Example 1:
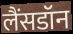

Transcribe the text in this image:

लैंसडॉन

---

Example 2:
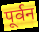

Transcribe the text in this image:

पूर्वन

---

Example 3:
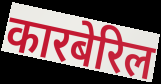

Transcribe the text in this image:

कारबेरिल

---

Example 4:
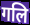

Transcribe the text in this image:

गलि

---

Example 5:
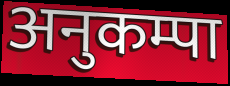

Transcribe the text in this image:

अनुकम्‍पा